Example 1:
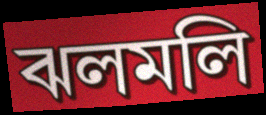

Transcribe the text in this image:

ঝলমলি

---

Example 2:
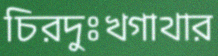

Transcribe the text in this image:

চিরদুঃখগাথার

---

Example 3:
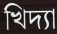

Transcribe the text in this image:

খিদ্যা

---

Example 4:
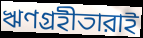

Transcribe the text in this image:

ঋণগ্রহীতারাই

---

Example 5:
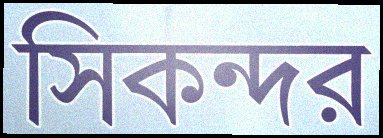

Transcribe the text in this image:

সিকন্দর